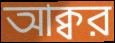
আক্বর